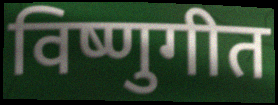
विष्णुगीत